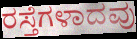
ರಸ್ತೆಗಳಾದವು